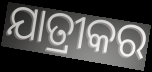
ଯାତ୍ରୀକର